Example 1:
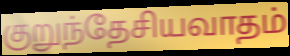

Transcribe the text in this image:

குறுந்தேசியவாதம்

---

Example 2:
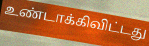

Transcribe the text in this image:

உண்டாக்கிவிட்டது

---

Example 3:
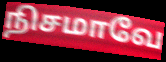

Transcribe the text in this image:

நிசமாவே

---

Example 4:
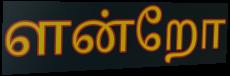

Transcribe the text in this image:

ளன்றோ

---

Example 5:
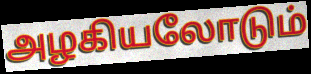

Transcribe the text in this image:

அழகியலோடும்